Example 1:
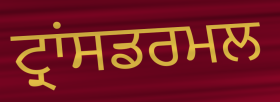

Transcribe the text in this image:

ਟ੍ਰਾਂਸਡਰਮਲ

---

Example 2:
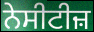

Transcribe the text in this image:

ਨੇਸੀਟੀਜ਼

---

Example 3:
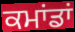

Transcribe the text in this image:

ਕਮਾਂਡਾਂ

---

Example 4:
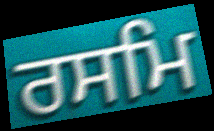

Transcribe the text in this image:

ਰਸਮਿ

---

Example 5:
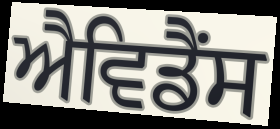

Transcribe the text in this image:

ਐਵਿਡੈਂਸ